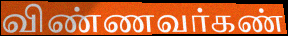
விண்ணவர்கண்